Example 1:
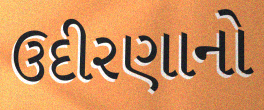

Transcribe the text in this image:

ઉદીરણાનો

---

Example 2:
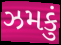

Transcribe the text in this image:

ઝમકું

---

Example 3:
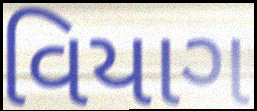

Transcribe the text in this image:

વિયાગ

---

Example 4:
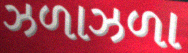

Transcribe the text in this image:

ઝળાઝળા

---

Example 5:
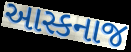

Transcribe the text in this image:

આસ્કનાજ